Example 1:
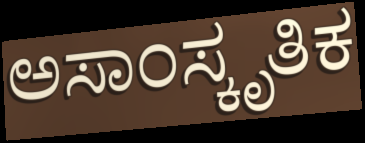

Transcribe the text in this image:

ಅಸಾಂಸ್ಕೃತಿಕ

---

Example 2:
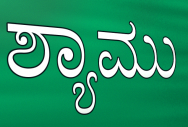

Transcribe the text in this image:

ಶ್ಯಾಮು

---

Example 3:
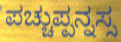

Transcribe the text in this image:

ಪಚ್ಚುಪ್ಪನ್ನಸ್ಸ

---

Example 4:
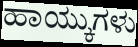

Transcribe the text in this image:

ಹಾಯ್ಕುಗಳು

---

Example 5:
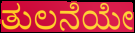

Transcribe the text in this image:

ತುಲನೆಯೇ